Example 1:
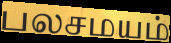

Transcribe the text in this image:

பலசமயம்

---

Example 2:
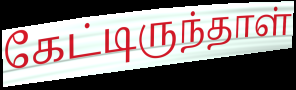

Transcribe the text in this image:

கேட்டிருந்தாள்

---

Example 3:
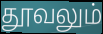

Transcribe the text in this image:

தூவலும்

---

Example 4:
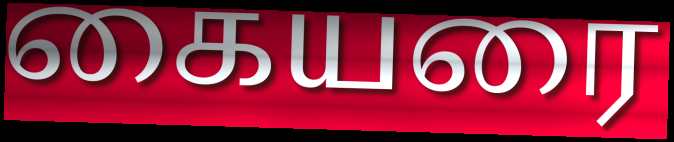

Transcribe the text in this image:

கையரை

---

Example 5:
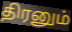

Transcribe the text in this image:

திரனும்